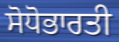
ਸੋਧੋਭਾਰਤੀ